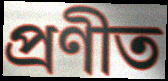
প্রণীত